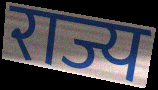
राज्य